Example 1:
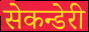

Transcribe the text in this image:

सेकन्डेरी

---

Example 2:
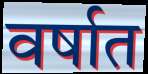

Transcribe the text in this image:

वर्षात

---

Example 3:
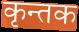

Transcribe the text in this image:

कृन्तक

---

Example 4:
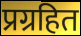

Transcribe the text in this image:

प्रग्रहित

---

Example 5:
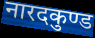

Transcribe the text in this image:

नारदकुण्ड